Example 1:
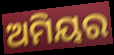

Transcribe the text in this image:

ଅମିୟର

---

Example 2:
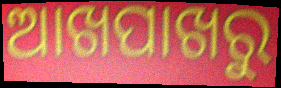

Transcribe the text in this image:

ଆଖପାଖରୁ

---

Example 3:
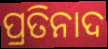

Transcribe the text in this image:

ପ୍ରତିନାଦ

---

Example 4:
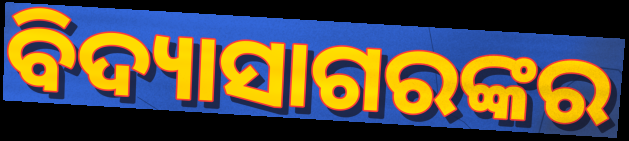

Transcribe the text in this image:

ବିଦ୍ୟାସାଗରଙ୍କର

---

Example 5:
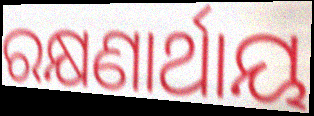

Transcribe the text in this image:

ରକ୍ଷଣାର୍ଥାୟ